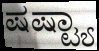
ಷಷ್ಟ್ಯಾ